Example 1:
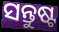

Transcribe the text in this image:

ସନ୍ତୁଷ୍ଟ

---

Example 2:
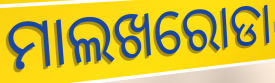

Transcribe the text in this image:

ମାଲଖରୋଡା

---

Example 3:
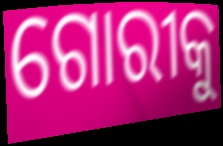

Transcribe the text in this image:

ଗୋରୀକୁ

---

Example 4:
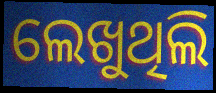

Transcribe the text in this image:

ଲେଖୁଥିଲି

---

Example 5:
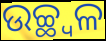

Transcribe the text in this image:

ଉଚ୍ଛ୍ଵଳ